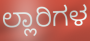
ಲ್ಲಾರಿಗಳ